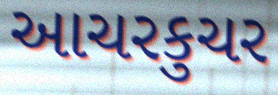
આચરકુચર